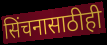
सिंचनासाठीही